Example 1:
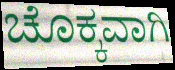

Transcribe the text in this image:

ಚೊಕ್ಕವಾಗಿ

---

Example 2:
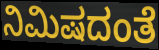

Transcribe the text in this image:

ನಿಮಿಷದಂತೆ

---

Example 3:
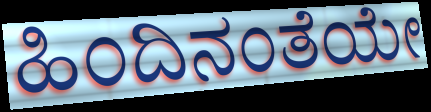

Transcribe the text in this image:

ಹಿಂದಿನಂತೆಯೇ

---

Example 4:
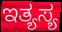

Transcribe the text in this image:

ಇತ್ಯಸ್ಯ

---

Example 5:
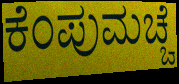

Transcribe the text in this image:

ಕೆಂಪುಮಚ್ಚೆ